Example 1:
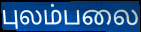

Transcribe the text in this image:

புலம்பலை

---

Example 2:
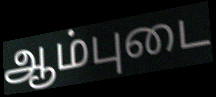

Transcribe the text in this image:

ஆம்புடை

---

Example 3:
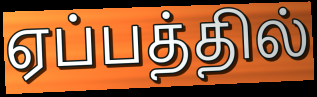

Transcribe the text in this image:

ஏப்பத்தில்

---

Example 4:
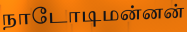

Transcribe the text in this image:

நாடோடிமன்னன்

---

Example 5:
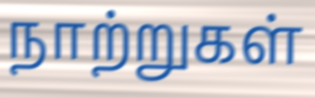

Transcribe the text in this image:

நாற்றுகள்